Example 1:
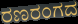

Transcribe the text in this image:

ರಣರಂಗದ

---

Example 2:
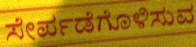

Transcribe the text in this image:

ಸೇರ್ಪಡೆಗೊಳಿಸುವ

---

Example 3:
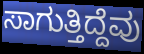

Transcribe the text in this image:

ಸಾಗುತ್ತಿದ್ದೆವು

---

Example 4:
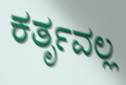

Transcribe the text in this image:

ಕರ್ತೃವಲ್ಲ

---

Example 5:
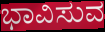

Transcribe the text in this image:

ಭಾವಿಸುವ